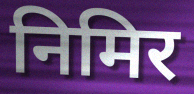
निमिर